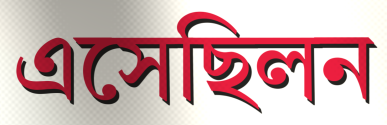
এসেছিলন